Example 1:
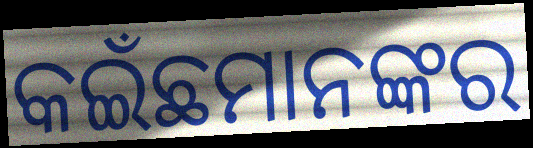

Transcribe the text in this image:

କଇଁଛମାନଙ୍କର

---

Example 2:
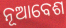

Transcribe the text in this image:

ନୂଆବେଶ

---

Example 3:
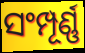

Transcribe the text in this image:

ସଂମ୍ପୂର୍ଣ୍ଣ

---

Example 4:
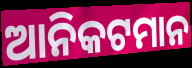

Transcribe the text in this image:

ଆନିକଟମାନ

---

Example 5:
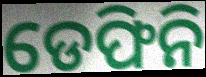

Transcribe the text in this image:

ଡେଫିନି